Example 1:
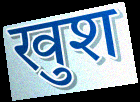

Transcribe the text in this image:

खुश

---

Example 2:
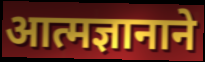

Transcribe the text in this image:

आत्मज्ञानाने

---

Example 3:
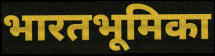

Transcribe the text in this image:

भारतभूमिका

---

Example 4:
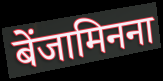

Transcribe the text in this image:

बेंजामिनना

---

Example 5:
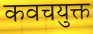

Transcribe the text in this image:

कवचयुक्त